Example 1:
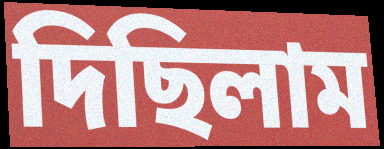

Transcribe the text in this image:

দিছিলাম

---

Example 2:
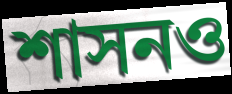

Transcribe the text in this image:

শাসনও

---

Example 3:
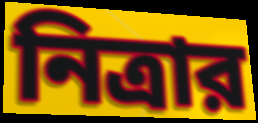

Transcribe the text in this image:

নিত্রার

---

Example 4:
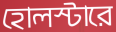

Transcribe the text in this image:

হোলস্টারে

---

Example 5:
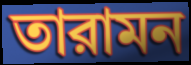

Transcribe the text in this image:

তারামন